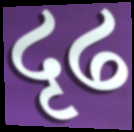
દૃઢ